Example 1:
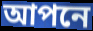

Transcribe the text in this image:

আপনে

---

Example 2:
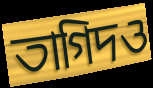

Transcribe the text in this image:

তাগিদও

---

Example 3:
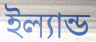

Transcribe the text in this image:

ইল্যান্ড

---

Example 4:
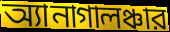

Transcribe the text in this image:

অ্যানাগালঞ্চার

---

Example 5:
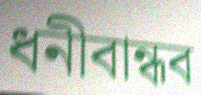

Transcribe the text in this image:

ধনীবান্ধব